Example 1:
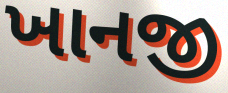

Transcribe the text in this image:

ખાનજી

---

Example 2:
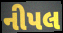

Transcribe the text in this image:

નીપલ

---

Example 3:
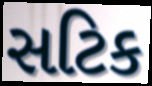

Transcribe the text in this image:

સટિક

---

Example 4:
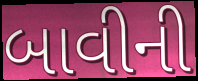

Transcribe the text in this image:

બાવીની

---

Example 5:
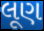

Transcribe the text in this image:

લૂણ